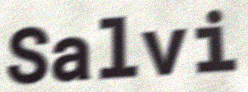
Salvi